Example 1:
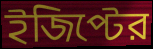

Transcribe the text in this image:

ইজিপ্টের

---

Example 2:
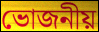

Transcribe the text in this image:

ভোজনীয়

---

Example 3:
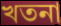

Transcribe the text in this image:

খতনা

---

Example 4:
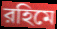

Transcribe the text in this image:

রহিমে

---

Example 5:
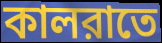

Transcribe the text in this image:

কালরাতে